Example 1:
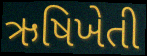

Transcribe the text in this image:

ઋષિખેતી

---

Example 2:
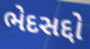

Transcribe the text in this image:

ભેદસદ્દો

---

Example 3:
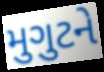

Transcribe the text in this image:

મુગુટને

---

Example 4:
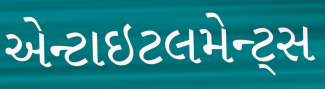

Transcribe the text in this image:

એન્ટાઇટલમેન્ટ્સ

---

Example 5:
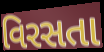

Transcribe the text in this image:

વિરસતા